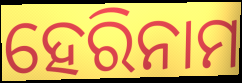
ହେରିନାମ